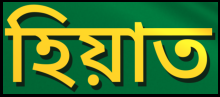
হিয়াত